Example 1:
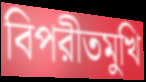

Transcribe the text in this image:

বিপরীতমুখি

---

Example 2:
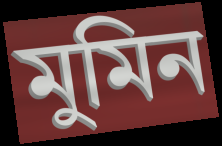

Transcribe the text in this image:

মুমিন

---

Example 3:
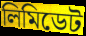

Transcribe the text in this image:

লিমিডেট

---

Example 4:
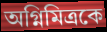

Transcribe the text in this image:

অগ্নিমিত্রকে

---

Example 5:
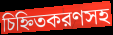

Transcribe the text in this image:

চিহ্নিতকরণসহ